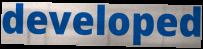
developed